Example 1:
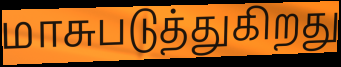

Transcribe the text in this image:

மாசுபடுத்துகிறது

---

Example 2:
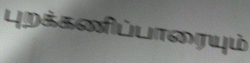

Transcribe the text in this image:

புறக்கணிப்பாரையும்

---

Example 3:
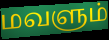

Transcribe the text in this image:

மவளும்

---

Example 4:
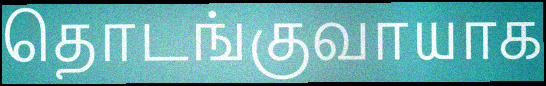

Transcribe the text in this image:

தொடங்குவாயாக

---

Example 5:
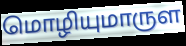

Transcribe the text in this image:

மொழியுமாருள